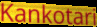
Kankotari